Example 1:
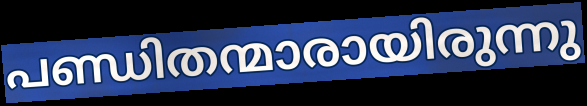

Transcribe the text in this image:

പണ്ഡിതന്മാരായിരുന്നു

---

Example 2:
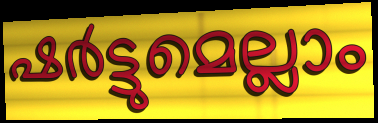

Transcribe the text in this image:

ഷർട്ടുമെല്ലാം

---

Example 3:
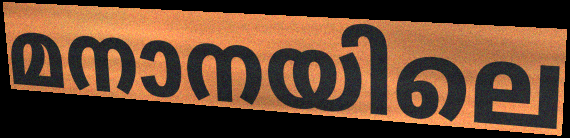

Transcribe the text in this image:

മനാനയിലെ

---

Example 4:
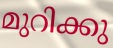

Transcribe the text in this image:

മുറിക്കു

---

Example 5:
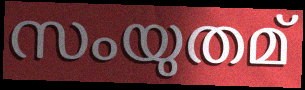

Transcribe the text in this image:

സംയുതമ്